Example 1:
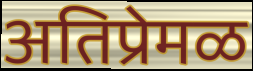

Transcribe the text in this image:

अतिप्रेमळ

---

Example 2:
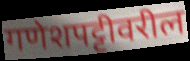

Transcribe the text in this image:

गणेशपट्टीवरील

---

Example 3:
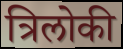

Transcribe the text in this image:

त्रिलोकी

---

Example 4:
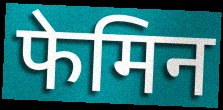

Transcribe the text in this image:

फेमिन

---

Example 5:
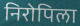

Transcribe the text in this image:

निरोपिला